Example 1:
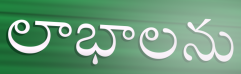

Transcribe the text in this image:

లాభాలను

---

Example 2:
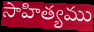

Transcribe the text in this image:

సాహిత్యము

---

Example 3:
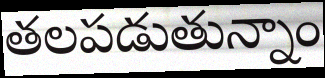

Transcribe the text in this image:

తలపడుతున్నాం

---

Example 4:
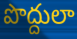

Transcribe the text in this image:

పొద్దులా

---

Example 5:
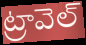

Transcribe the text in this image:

ట్రావెల్